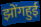
झोंगहुई